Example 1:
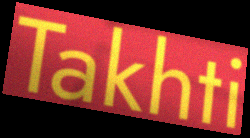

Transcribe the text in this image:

Takhti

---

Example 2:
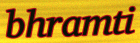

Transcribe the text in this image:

bhramti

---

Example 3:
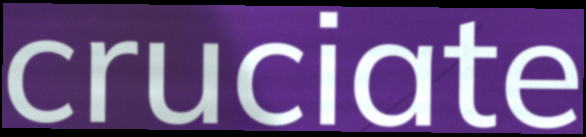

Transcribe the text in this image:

cruciate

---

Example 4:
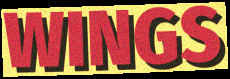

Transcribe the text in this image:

WINGS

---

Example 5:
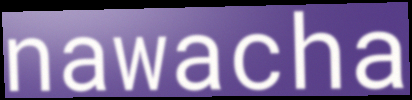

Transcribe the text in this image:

nawacha